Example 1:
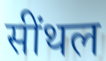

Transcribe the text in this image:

सींथल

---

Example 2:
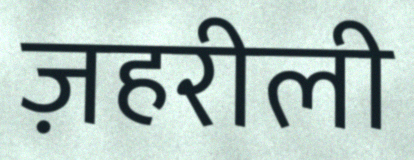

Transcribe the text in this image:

ज़हरीली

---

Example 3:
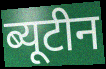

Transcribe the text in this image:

ब्यूटीन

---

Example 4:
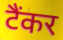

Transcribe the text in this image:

टैंकर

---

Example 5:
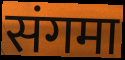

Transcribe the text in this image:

संगमा